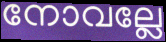
നോവല്ലേ